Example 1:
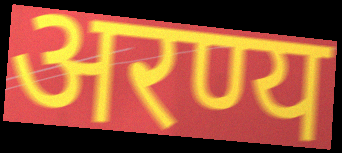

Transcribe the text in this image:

अरण्य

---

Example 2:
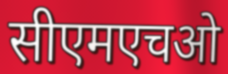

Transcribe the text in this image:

सीएमएचओ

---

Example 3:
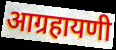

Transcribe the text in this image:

आग्रहायणी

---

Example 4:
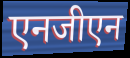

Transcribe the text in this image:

एनजीएन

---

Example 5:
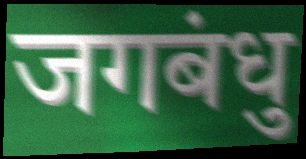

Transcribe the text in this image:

जगबंधु